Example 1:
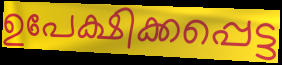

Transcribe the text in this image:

ഉപേക്ഷിക്കപ്പെട്ട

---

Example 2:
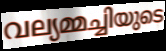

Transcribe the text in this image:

വല്യമ്മച്ചിയുടെ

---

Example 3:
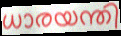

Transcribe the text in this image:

ധാരയന്തി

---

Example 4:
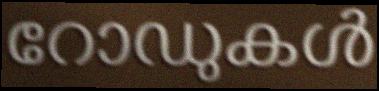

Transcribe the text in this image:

റോഡുകൾ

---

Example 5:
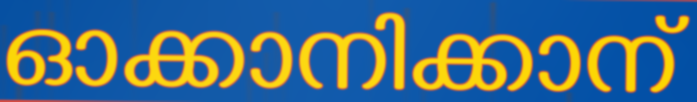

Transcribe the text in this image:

ഓക്കാനിക്കാന്